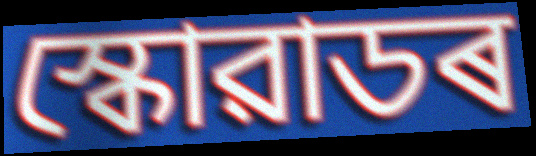
স্কোৱাডৰ